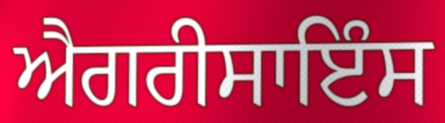
ਐਗਰੀਸਾਇੰਸ